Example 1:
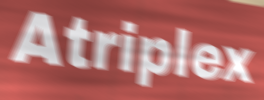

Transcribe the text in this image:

Atriplex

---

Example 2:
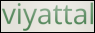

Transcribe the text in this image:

viyattal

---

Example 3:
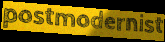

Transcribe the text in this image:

postmodernist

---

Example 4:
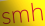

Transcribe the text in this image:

smh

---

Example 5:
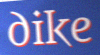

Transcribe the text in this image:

dike